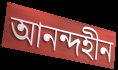
আনন্দহীন